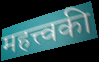
महत्त्वकी